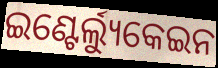
ଇଣ୍ଟେର୍ଲ୍ୟୁକେଇନ